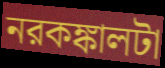
নরকঙ্কালটা